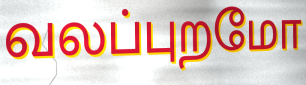
வலப்புறமோ